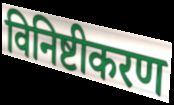
विनिष्टीकरण